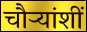
चौर्‍यांशीं